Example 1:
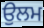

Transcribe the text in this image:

ਉਲਮ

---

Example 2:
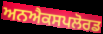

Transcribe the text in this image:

ਅਨਐਕਸਪਲੋਰਡ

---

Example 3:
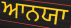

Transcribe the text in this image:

ਆਨਯਾ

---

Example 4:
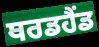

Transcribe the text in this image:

ਥਰਡਹੈਂਡ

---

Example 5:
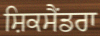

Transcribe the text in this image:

ਸ਼ਿਕਸੈਂਡਰਾ